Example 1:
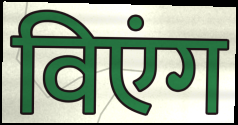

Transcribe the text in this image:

विएंग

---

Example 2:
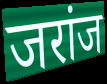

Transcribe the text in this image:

जरांज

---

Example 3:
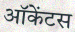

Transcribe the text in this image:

ऑकेंटस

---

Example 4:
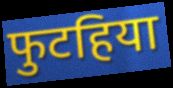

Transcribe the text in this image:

फुटहिया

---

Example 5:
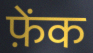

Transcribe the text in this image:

फ़ेंक